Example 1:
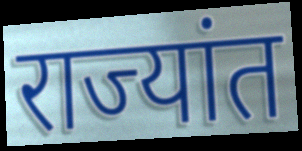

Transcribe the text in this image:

राज्यांत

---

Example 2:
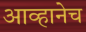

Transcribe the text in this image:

आव्हानेच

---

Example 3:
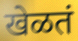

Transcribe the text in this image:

खेळतं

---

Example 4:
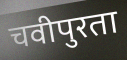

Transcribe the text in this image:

चवीपुरता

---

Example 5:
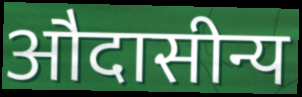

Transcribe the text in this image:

औदासीन्य